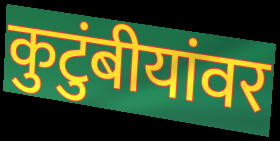
कुटुंबीयांवर